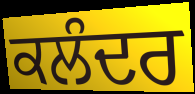
ਕਲੰਦਰ